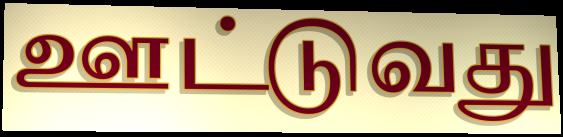
ஊட்டுவது